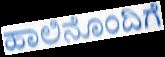
ಹಾಲಿನೊಂದಿಗೆ